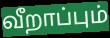
வீறாப்பும்